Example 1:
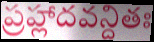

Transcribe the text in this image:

ప్రహ్లాదవన్దితః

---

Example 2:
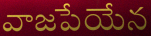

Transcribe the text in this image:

వాజపేయేన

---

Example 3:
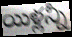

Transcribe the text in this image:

యిళ్లన్నీ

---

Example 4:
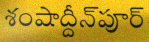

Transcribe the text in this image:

శంషాద్దీన్‌పూర్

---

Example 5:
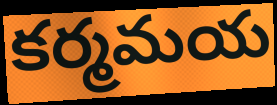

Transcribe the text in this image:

కర్మమయ